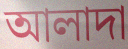
আলাদা